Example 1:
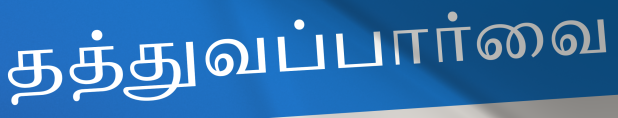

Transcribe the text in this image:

தத்துவப்பார்வை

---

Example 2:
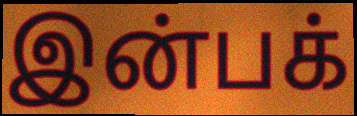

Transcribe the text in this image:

இன்பக்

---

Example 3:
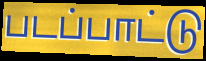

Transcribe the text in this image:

படப்பாட்டு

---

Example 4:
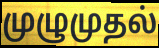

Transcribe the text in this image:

முழுமுதல்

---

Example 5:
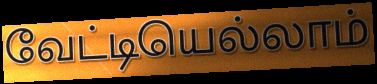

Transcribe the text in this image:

வேட்டியெல்லாம்